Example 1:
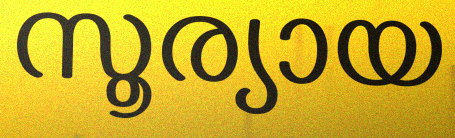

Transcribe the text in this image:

സൂര്യായ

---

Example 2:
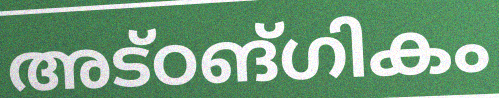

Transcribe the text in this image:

അട്ഠങ്ഗികം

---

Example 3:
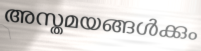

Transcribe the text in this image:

അസ്തമയങ്ങൾക്കും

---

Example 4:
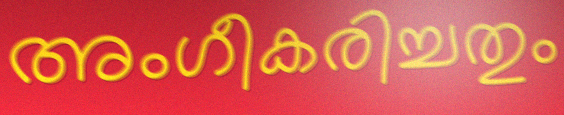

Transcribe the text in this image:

അംഗീകരിച്ചതും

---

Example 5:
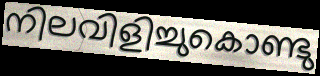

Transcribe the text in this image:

നിലവിളിച്ചുകൊണ്ടു